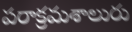
పరాక్రమశాలురు